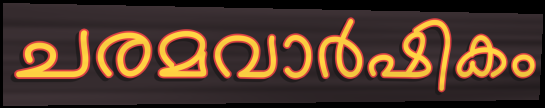
ചരമവാർഷികം